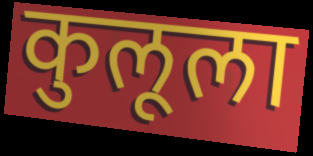
कुलूला